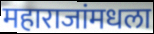
महाराजांमधला